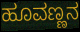
ಹೂವಣ್ಣನ